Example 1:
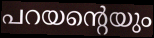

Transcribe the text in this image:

പറയന്റെയും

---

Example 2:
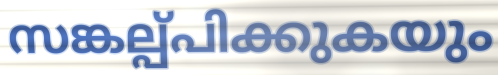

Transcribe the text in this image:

സങ്കല്പ്പിക്കുകയും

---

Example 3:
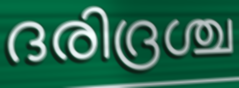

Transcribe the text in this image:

ദരിദ്രശ്ച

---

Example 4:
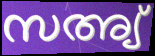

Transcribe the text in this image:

സഅ്യ്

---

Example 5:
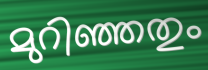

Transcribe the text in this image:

മുറിഞ്ഞതും